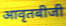
आवृतबीजी